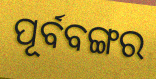
ପୂର୍ବବଙ୍ଗର